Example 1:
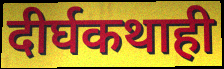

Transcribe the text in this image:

दीर्घकथाही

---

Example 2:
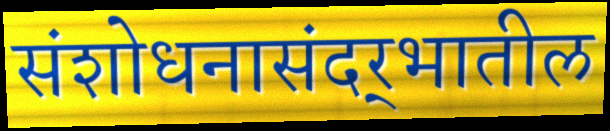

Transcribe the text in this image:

संशोधनासंदर्भातील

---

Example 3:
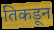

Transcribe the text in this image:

तिकडून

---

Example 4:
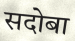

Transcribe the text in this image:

सदोबा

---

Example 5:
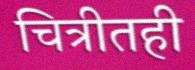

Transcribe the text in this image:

चित्रीतही